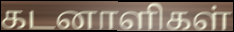
கடனாளிகள்